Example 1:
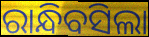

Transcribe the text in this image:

ରାନ୍ଧିବସିଲା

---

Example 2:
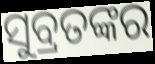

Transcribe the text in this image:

ସୁବ୍ରତଙ୍କର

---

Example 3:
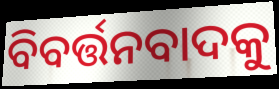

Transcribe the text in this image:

ବିବର୍ତ୍ତନବାଦକୁ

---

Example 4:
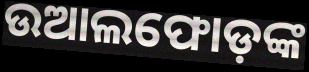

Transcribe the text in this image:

ଉଆଲଫୋଡ଼ଙ୍କ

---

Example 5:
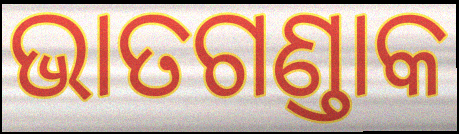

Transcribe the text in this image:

ଭାତଗଣ୍ଡାକ